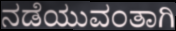
ನಡೆಯುವಂತಾಗಿ